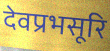
देवप्रभसूरि